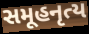
સમૂહનૃત્ય